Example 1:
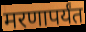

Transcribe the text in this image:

मरणापर्यंत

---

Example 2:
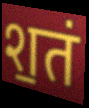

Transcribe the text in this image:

श॒तं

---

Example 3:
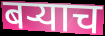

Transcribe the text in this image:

बऱ्याच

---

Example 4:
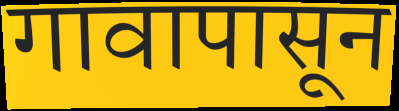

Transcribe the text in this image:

गावापासून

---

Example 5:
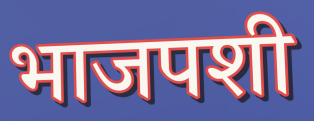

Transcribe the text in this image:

भाजपशी